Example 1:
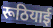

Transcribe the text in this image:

रूठियाई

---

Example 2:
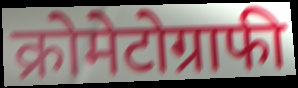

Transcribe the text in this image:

क्रोमेटोग्राफी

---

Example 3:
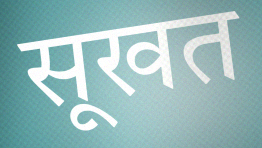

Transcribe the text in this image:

सूखत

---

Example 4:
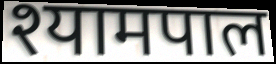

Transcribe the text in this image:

श्यामपाल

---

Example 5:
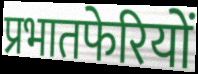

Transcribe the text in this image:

प्रभातफेरियों